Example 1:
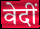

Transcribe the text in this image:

वेदीं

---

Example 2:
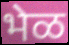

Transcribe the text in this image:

भेळ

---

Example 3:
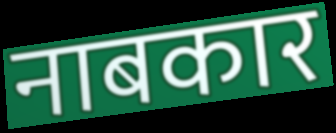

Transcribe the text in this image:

नाबकार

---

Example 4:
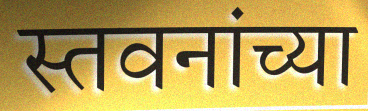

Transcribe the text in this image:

स्तवनांच्या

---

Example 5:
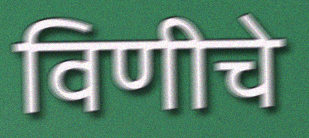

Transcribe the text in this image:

विणीचे